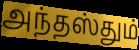
அந்தஸ்தும்